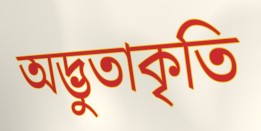
অদ্ভুতাকৃতি